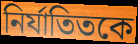
নির্যাতিতকে